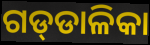
ଗଡ୍‍ଡାଳିକା